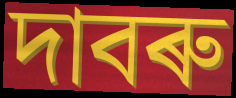
দাবৰু